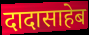
दादासाहेब